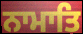
ਨਾਮਾਤਿ